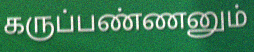
கருப்பண்ணனும்